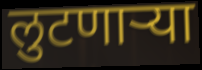
लुटणाऱ्या